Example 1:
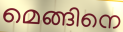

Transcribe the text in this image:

മെങ്ങിനെ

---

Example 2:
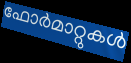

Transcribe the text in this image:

ഫോർമാറ്റുകൾ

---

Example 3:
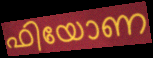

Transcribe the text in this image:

ഫിയോണ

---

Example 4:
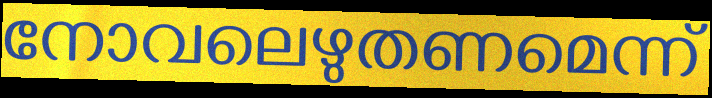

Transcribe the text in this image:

നോവലെഴുതണമെന്ന്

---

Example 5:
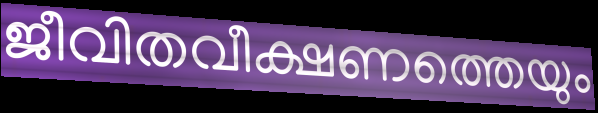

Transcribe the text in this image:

ജീവിതവീക്ഷണത്തെയും